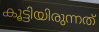
കൂട്ടിയിരുന്നത്